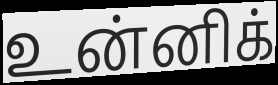
உன்னிக்